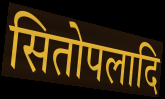
सितोपलादि